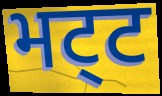
भट्‌ट